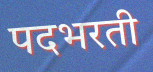
पदभरती